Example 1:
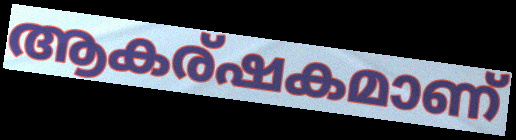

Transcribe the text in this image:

ആകര്ഷകമാണ്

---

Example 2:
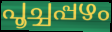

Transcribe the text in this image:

പൂച്ചപ്പഴം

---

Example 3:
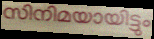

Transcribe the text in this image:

സിനിമയായിട്ടും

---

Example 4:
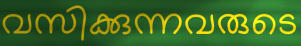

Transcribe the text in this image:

വസിക്കുന്നവരുടെ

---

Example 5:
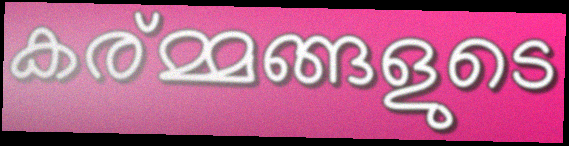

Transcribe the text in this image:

കര്മ്മങ്ങളുടെ